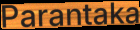
Parantaka